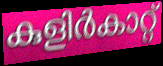
കുളിർകാറ്റ്